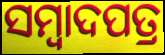
ସମ୍ୱାଦପତ୍ର